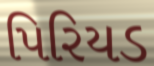
પિરિયડ